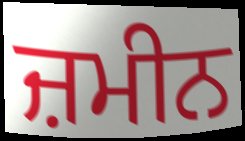
ਜ਼ਮੀਨ